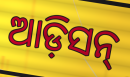
ଆଡ଼ିସନ୍